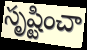
సృష్టించా